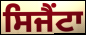
ਸਿਜੈਂਟਾ